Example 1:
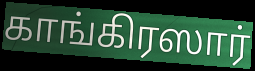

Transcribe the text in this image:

காங்கிரஸார்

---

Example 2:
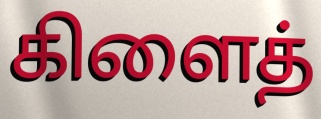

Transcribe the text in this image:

கிளைத்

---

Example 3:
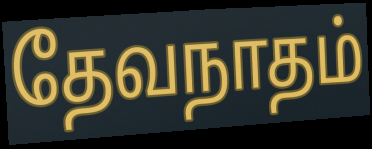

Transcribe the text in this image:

தேவநாதம்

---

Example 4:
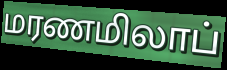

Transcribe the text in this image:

மரணமிலாப்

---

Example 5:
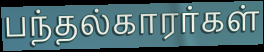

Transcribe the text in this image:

பந்தல்காரர்கள்